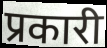
प्रकारी